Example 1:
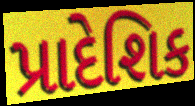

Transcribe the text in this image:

પ્રાદેશિક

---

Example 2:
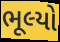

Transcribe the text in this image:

ભૂલ્યો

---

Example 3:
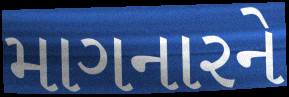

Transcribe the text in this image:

માગનારને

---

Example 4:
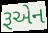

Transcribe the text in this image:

રૂએન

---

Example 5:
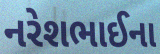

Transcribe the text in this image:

નરેશભાઈના